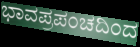
ಭಾವಪ್ರಪಂಚದಿಂದ